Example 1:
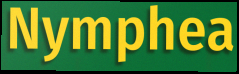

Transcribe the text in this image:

Nymphea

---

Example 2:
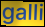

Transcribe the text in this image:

galli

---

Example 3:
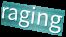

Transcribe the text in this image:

raging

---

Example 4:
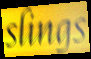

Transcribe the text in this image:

slings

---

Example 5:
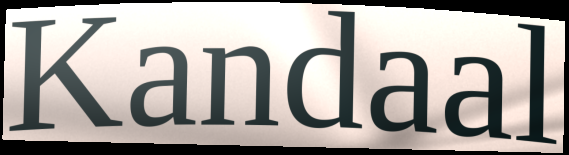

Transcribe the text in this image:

Kandaal